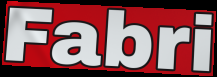
Fabri